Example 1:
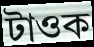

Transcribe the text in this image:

টাওক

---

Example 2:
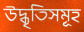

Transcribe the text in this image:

উদ্ধৃতিসমূহ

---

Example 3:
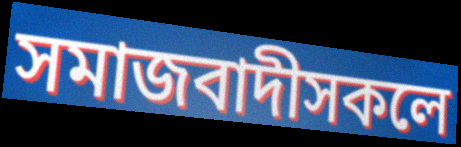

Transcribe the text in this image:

সমাজবাদীসকলে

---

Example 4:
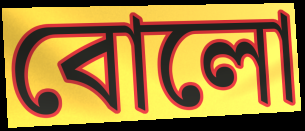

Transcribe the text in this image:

বোলো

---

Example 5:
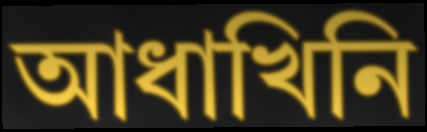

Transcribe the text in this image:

আধাখিনি